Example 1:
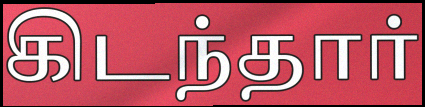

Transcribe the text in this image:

கிடந்தார்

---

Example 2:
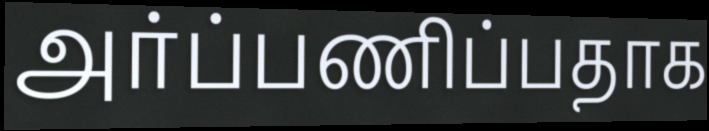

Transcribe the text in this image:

அர்ப்பணிப்பதாக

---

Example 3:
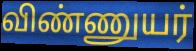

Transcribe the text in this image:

விண்ணுயர்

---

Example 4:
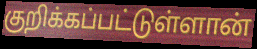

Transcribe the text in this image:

குறிக்கப்பட்டுள்ளான்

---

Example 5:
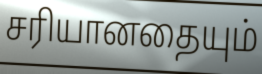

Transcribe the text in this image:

சரியானதையும்